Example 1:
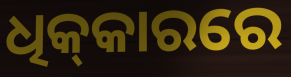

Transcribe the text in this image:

ଧିକ୍‌କାରରେ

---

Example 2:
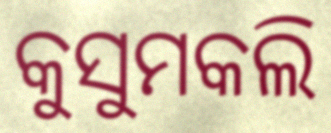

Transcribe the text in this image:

କୁସୁମକଲି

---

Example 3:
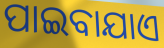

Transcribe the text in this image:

ପାଇବାଯାଏ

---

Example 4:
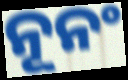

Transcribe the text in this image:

ନୂନଂ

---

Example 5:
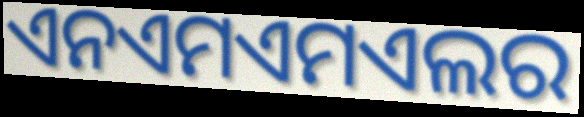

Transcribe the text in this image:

ଏନଏମଏମଏଲର